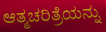
ಆತ್ಮಚರಿತ್ರೆಯನ್ನು